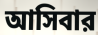
আসিবার